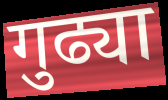
गुढ्या